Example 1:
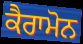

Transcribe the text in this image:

ਕੈਰਾਮੋਨ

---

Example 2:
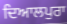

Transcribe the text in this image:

ਦਿਆਲਪੁਰਾ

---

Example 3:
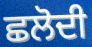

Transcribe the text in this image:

ਛਲੋਦੀ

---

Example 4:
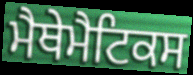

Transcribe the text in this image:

ਮੈਥੇਮੈਟਿਕਸ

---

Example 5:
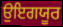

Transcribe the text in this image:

ਉਇਗਯੂਰ